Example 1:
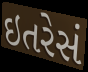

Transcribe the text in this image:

ઇતરેસં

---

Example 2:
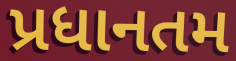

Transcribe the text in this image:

પ્રધાનતમ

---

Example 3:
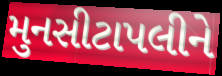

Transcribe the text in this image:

મુનસીટાપલીને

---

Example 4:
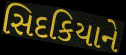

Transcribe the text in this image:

સિદકિયાને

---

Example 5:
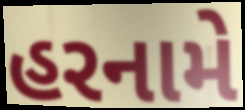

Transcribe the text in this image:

હરનામે